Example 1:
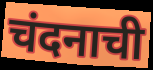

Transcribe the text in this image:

चंदनाची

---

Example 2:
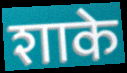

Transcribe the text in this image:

शाके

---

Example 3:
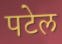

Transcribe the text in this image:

पटेल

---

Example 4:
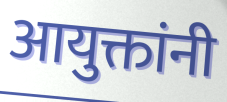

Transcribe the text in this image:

आयुक्तांनी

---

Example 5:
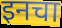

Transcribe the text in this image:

इनचा